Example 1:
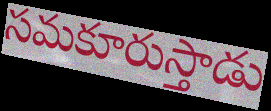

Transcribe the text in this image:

సమకూరుస్తాడు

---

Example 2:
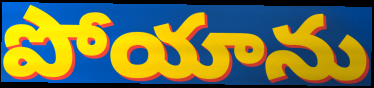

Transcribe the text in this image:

పోయాను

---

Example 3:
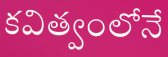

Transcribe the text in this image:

కవిత్వంలోనే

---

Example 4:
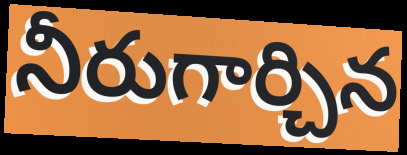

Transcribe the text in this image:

నీరుగార్చిన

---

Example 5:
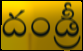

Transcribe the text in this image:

దండ్రీ